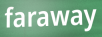
faraway